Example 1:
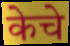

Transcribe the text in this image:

केचे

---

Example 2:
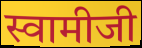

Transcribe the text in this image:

स्वामीजी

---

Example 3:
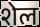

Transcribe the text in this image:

शेल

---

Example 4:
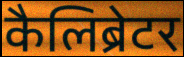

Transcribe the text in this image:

कैलिब्रेटर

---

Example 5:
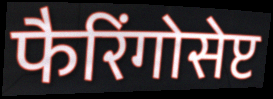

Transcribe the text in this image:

फैरिंगोसेप्ट